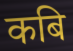
कबि